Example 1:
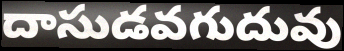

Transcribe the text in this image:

దాసుడవగుదువు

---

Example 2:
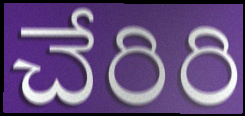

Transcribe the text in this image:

చేరిరి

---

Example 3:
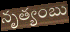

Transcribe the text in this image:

నృత్యంబు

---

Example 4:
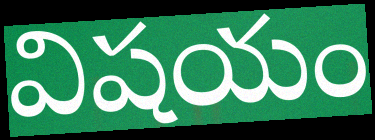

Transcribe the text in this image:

విషయం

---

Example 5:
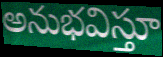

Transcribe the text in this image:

అనుభవిస్తూ